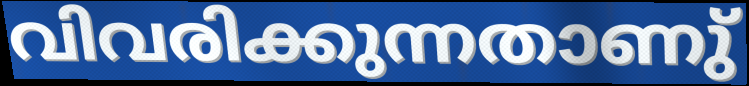
വിവരിക്കുന്നതാണു്